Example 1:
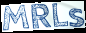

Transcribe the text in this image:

MRLs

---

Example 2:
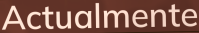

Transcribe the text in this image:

Actualmente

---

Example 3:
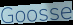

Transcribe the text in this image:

Goosse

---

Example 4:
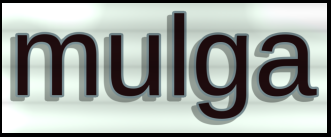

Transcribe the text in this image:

mulga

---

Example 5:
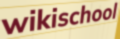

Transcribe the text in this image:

wikischool